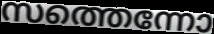
സത്തെന്നോ